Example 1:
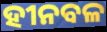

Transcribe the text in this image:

ହୀନବଳ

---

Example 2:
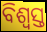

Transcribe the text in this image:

ବିଶ୍ବସ୍ତ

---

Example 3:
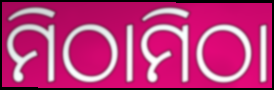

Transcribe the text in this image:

ମିଠାମିଠା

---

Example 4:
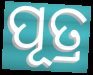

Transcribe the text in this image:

ପୂତ୍ର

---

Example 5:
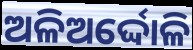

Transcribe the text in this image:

ଅଳିଅର୍ଦ୍ଦୋଳି